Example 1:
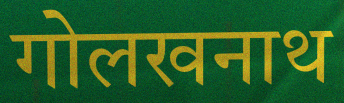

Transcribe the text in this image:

गोलखनाथ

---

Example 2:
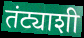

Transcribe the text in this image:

तंट्याशी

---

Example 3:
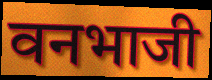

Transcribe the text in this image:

वनभाजी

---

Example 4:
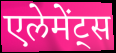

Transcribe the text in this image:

एलेमेंट्स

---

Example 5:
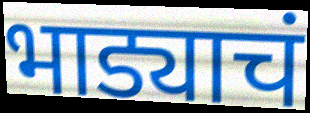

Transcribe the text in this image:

भाड्याचं